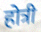
होत्री